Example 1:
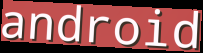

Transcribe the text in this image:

android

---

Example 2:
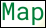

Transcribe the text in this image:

Map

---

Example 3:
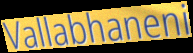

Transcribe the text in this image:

Vallabhaneni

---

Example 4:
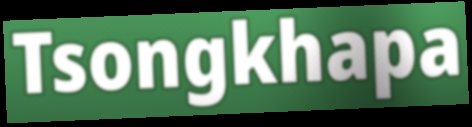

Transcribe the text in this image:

Tsongkhapa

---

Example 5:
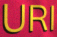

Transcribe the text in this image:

URI